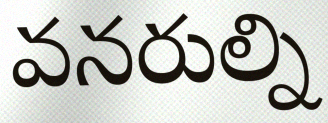
వనరుల్ని